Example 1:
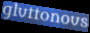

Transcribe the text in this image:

gluttonous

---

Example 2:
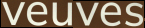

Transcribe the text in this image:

veuves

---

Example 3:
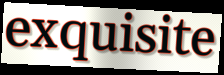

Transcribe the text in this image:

exquisite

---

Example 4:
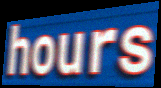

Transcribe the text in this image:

hours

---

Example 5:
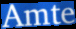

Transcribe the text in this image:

Amte